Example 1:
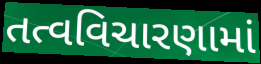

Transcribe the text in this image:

તત્વવિચારણામાં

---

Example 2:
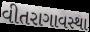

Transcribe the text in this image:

વીતરાગાવસ્થા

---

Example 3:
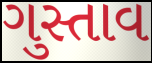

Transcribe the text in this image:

ગુસ્તાવ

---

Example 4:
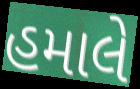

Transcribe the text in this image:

હમાલે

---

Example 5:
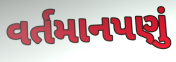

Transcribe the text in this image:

વર્તમાનપણું